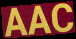
AAC